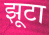
झूटा